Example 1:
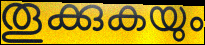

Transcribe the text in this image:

തൂക്കുകയും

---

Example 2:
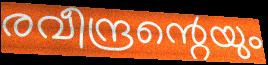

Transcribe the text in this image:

രവീന്ദ്രന്റെയും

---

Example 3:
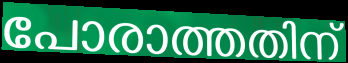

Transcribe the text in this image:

പോരാത്തതിന്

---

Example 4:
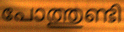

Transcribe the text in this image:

പോത്തുണ്ടി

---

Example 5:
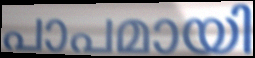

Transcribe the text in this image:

പാപമായി